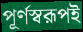
পূর্ণস্বরূপই